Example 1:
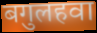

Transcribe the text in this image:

बगुलहवा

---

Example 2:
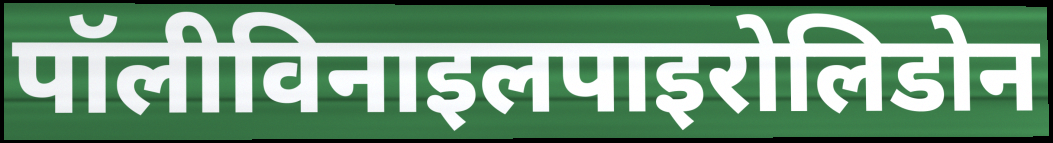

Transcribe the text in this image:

पॉलीविनाइलपाइरोलिडोन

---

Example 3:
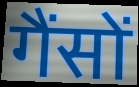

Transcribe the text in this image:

गैंसों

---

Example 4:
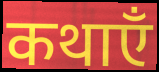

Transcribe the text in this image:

कथाएँ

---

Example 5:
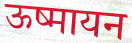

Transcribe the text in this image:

ऊष्मायन